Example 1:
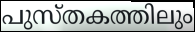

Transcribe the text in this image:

പുസ്തകത്തിലും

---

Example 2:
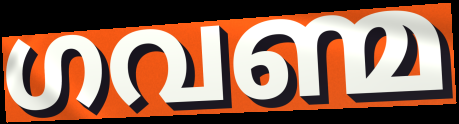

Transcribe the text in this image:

ഗവണ്മ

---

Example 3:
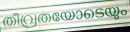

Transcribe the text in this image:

തീവ്രതയോടെയും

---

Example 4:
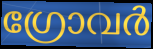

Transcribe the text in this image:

ഗ്രോവർ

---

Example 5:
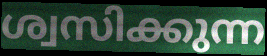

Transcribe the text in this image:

ശ്വസിക്കുന്ന